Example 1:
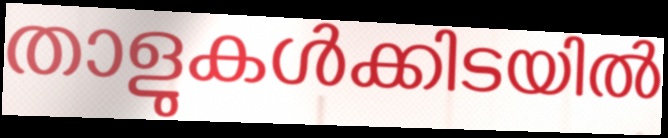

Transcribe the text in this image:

താളുകൾക്കിടയിൽ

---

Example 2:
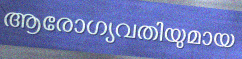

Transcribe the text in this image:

ആരോഗ്യവതിയുമായ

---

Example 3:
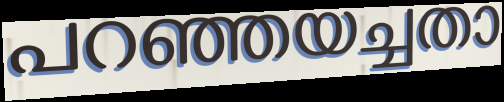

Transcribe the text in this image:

പറഞ്ഞയച്ചതാ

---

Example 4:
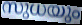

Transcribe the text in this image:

സുധയും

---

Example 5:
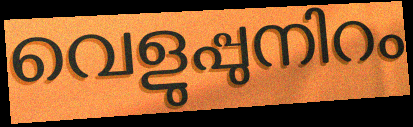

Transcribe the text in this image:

വെളുപ്പുനിറം